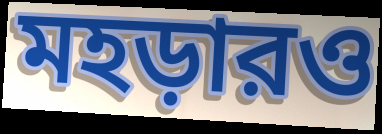
মহড়ারও